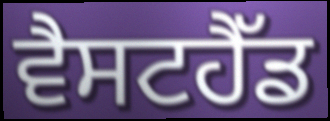
ਵੈਸਟਹੈੱਡ